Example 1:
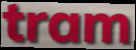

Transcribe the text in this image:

tram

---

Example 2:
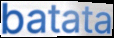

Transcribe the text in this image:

batata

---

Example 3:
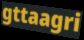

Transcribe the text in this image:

gttaagri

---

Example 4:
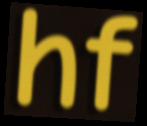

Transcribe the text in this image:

hf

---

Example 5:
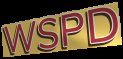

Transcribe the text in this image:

WSPD